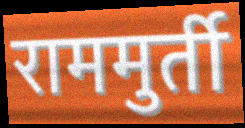
राममुर्ती